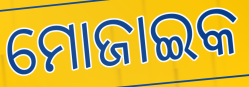
ମୋଜାଇକ